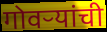
गोवऱ्यांची